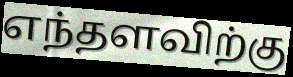
எந்தளவிற்கு